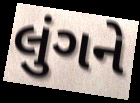
લુંગને